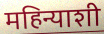
महिन्याशी